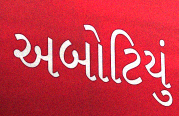
અબોટિયું